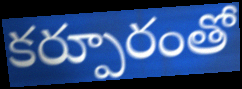
కర్పూరంతో